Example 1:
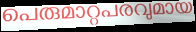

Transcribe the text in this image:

പെരുമാറ്റപരവുമായ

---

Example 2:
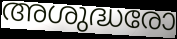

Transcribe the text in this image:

അശുദ്ധരോ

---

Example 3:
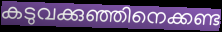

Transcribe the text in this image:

കടുവക്കുഞ്ഞിനെക്കണ്ട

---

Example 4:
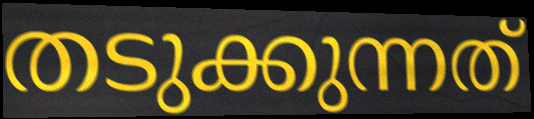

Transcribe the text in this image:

തടുക്കുന്നത്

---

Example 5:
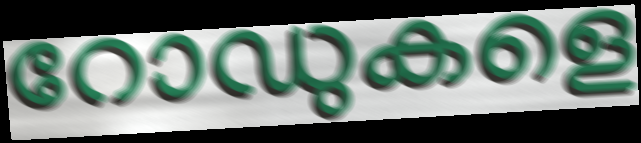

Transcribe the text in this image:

റോഡുകളെ